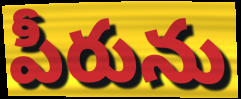
పీరును